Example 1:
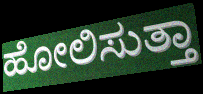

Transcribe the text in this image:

ಹೋಲಿಸುತ್ತಾ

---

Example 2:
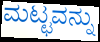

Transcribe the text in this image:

ಮಟ್ಟವನ್ನು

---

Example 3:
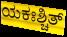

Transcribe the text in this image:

ಯಕಃಶ್ಚಿತ್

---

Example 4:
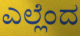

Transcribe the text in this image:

ಎಲ್ಲೆಂದ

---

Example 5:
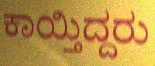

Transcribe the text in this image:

ಕಾಯ್ತಿದ್ದರು